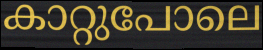
കാറ്റുപോലെ